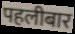
पहलीबार